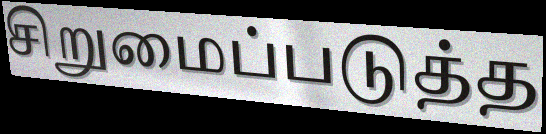
சிறுமைப்படுத்த